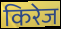
किरेज